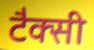
टैक्‍सी